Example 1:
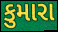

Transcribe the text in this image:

કુમારા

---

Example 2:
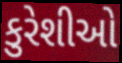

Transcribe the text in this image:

કુરેશીઓ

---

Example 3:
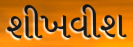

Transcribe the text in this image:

શીખવીશ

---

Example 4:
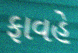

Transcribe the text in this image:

ફાવહે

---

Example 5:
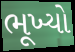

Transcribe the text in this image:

ભૂખ્યો